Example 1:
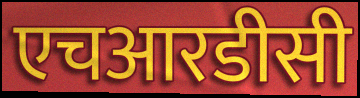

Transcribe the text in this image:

एचआरडीसी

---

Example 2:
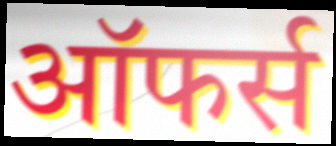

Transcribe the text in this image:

ऑफर्स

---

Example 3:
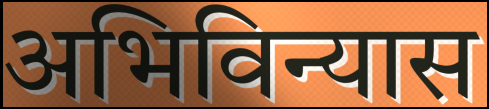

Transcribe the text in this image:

अभिविन्यास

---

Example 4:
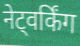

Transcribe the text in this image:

नेट्वर्किंग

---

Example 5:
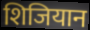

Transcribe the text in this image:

शिजियान